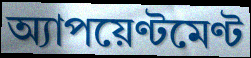
অ্যাপয়েণ্টমেণ্ট